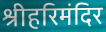
श्रीहरिमंदिर